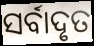
ସର୍ବାଦୃତ